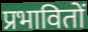
प्रभावितों